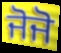
ਜੋਜੋ